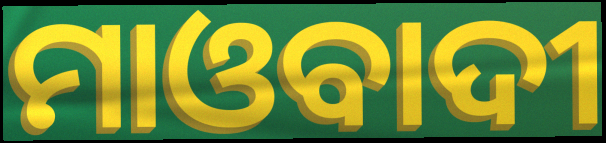
ମାଓବାଦୀ